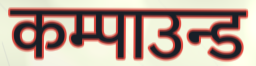
कम्पाउन्ड